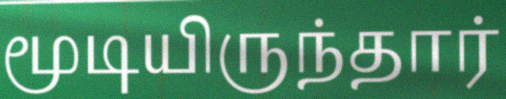
மூடியிருந்தார்